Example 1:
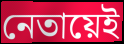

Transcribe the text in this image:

নেতায়েই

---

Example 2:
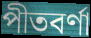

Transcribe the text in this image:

পীতবৰ্ণা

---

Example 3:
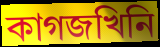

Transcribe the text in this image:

কাগজখিনি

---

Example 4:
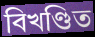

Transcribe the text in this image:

বিখণ্ডিত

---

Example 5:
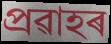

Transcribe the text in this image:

প্ৰৱাহৰ